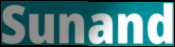
Sunand